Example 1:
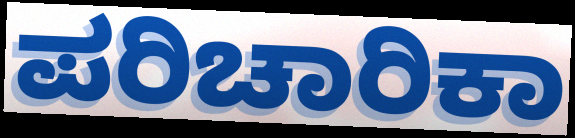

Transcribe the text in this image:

ಪರಿಚಾರಿಕಾ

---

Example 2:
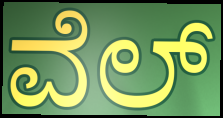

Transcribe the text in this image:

ವೆಲ್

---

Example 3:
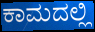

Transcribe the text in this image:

ಕಾಮದಲ್ಲಿ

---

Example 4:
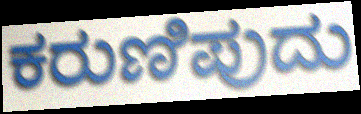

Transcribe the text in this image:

ಕರುಣಿಪುದು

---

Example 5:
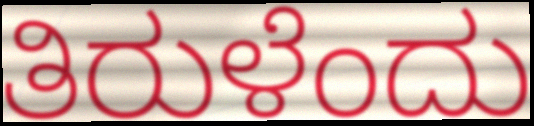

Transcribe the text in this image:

ತಿರುಳೆಂದು